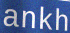
ankh